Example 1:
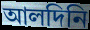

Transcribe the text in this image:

আলদিনি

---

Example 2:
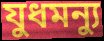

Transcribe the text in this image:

যুধমন্যু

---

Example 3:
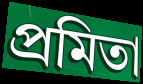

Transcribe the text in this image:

প্রমিতা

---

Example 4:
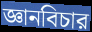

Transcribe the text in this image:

জ্ঞানবিচার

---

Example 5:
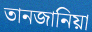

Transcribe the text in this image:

তানজানিয়া